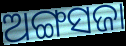
ଅଙ୍ଗସଜା